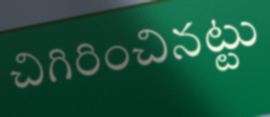
చిగిరించినట్టు